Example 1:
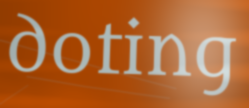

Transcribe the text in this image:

doting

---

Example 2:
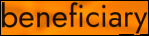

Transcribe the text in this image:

beneficiary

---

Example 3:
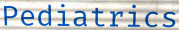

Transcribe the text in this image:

Pediatrics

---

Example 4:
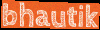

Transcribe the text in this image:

bhautik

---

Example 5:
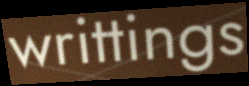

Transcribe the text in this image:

writtings